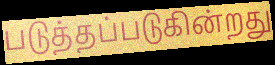
படுத்தப்படுகின்றது